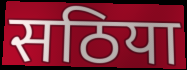
सठिया